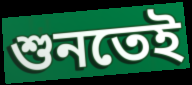
শুনতেই